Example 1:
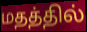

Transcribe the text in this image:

மதத்தில்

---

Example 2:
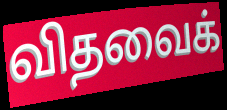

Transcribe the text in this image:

விதவைக்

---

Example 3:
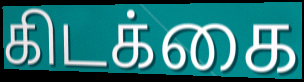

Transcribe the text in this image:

கிடக்கை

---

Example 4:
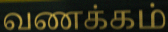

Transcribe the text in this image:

வணக்கம்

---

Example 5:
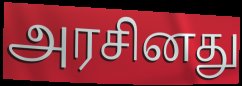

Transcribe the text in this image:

அரசினது